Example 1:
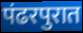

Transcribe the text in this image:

पंढरपुरात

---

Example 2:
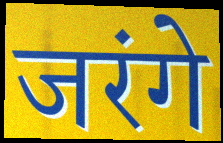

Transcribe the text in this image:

जरंगे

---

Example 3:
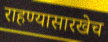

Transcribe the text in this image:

राहण्यासारखेच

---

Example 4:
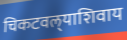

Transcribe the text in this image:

चिकटवल्याशिवाय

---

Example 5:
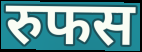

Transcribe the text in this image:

रुफस